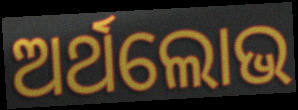
ଅର୍ଥଲୋଭ